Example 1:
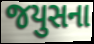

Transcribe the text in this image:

જયુસના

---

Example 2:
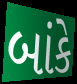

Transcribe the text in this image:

બાંકે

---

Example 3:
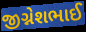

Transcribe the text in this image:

જીગ્નેશભાઈ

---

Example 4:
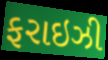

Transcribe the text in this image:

ફરાઇઝી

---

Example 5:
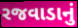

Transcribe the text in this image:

રજવાડાનું